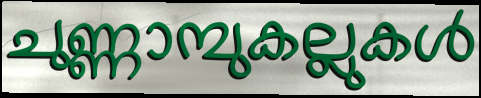
ചുണ്ണാമ്പുകല്ലുകൾ